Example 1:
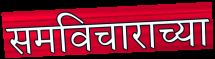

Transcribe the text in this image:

समविचाराच्या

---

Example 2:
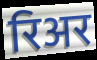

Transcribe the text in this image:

रिअर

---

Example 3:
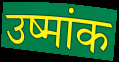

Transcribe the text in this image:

उष्मांक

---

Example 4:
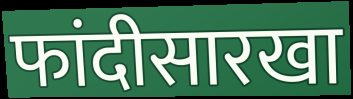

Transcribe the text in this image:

फांदीसारखा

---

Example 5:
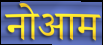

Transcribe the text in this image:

नोआम